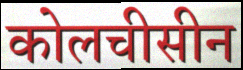
कोलचीसीन